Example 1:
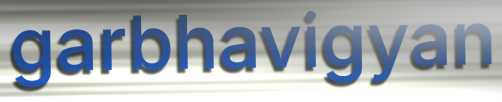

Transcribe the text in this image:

garbhavigyan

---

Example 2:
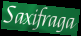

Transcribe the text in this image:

Saxifraga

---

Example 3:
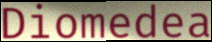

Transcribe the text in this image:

Diomedea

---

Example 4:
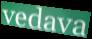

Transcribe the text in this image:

vedava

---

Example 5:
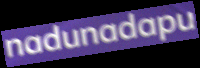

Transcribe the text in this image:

nadunadapu